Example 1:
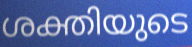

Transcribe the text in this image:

ശക്തിയുടെ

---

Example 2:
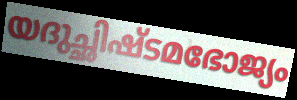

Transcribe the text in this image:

യദുച്ഛിഷ്ടമഭോജ്യം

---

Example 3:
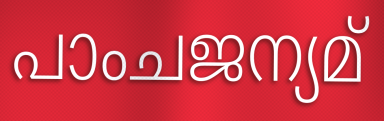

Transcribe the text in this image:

പാംചജന്യമ്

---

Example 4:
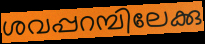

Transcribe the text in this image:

ശവപ്പറമ്പിലേക്കു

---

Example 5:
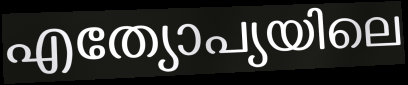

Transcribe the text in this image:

എത്യോപ്യയിലെ